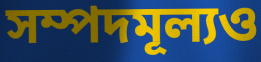
সম্পদমূল্যও